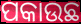
ପକାଉଛ